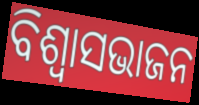
ବିଶ୍ଵାସଭାଜନ